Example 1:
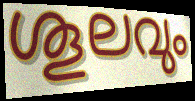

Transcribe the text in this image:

ശൂലവും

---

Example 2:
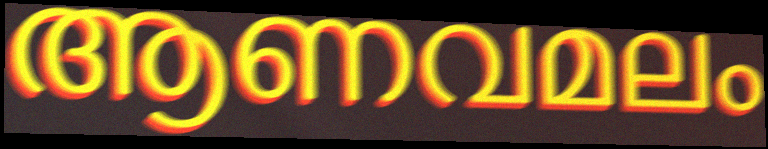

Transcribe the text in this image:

ആണവമലം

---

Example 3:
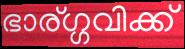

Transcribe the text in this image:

ഭാര്ഗ്ഗവിക്ക്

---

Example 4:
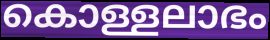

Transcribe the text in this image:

കൊള്ളലാഭം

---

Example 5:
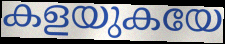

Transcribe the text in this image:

കളയുകയേ